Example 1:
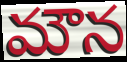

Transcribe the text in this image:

మౌన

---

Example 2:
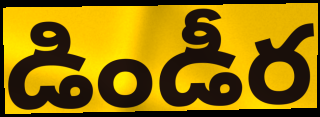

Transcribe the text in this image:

డిండీర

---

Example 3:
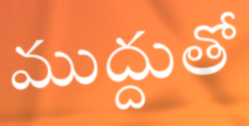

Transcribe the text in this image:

ముద్దుతో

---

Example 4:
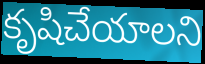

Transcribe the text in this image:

కృషిచేయాలని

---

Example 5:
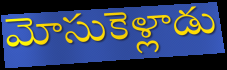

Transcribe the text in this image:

మోసుకెళ్లాడు